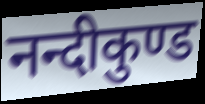
नन्दीकुण्ड